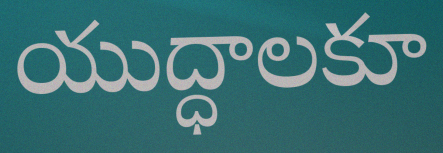
యుద్ధాలకూ